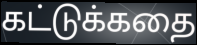
கட்டுக்கதை